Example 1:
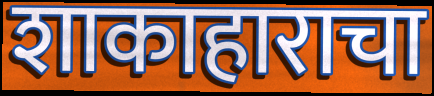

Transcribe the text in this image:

शाकाहाराचा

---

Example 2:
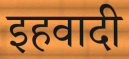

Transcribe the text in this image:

इहवादी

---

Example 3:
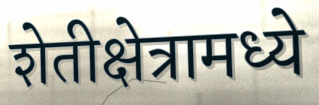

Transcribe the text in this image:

शेतीक्षेत्रामध्ये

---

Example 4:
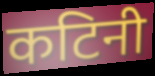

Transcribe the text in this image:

कटिनी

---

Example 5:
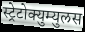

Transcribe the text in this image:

स्ट्रेटोक्युम्युलस